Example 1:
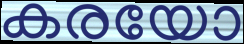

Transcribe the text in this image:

കരയോ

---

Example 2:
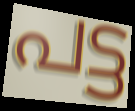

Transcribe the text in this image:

പട്ട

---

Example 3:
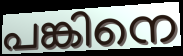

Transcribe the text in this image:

പങ്കിനെ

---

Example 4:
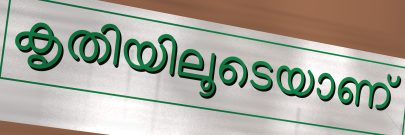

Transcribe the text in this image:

കൃതിയിലൂടെയാണ്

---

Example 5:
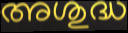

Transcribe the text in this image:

അശുദ്ധ